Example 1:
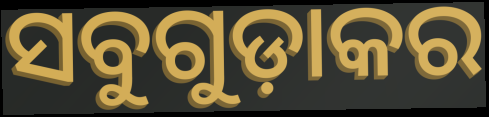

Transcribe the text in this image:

ସବୁଗୁଡ଼ାକର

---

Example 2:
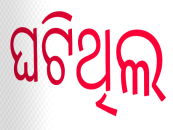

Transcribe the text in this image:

ଘଟିଥିଲ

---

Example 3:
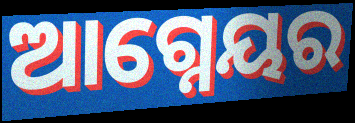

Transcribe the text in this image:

ଆଗ୍ନେୟର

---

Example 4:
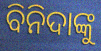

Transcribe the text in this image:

ବିନିଦାଙ୍କୁ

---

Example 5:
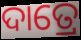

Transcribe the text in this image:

ଦାତ୍ରେ